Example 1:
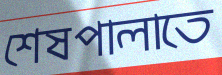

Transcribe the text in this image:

শেষপালাতে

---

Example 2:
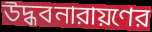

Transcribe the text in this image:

উদ্ধবনারায়ণের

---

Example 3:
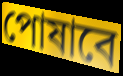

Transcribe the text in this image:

পোষাবে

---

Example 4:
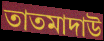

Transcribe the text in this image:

তাতমাদাউ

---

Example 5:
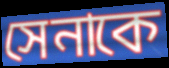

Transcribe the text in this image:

সেনাকে